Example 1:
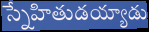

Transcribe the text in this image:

స్నేహితుడయ్యాడు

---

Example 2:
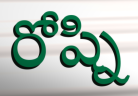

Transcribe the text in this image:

రోష్ని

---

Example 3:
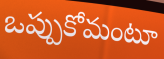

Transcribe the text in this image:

ఒప్పుకోమంటూ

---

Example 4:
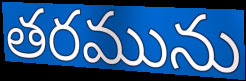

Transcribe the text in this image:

తరమును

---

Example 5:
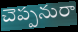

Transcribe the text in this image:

చెప్పనురా